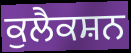
ਕੁਲੈਕਸ਼ਨ